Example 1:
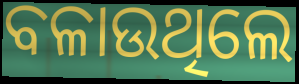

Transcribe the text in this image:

ବଳାଉଥିଲେ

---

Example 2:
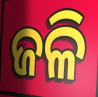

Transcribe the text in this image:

ଜଳି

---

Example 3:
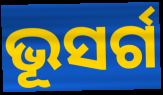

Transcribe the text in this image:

ଭୂସର୍ଗ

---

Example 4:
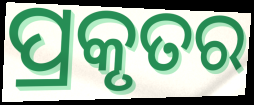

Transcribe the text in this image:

ପ୍ରକୃତର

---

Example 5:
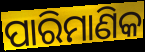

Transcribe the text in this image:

ପାରିମାଣିକ